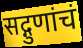
सद्गुणांचं